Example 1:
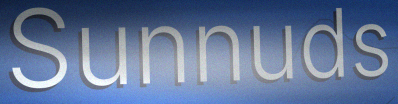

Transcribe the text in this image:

Sunnuds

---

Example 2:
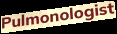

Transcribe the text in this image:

Pulmonologist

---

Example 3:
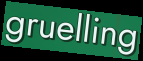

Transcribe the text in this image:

gruelling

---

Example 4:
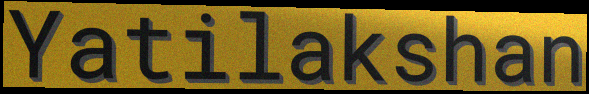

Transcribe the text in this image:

Yatilakshan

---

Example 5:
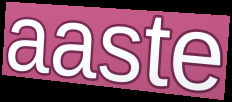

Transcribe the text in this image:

aaste